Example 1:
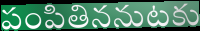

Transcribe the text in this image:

పంపితిననుటకు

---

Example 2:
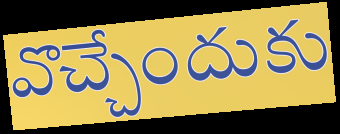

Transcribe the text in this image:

వొచ్చేందుకు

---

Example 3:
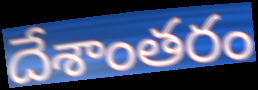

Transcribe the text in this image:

దేశాంతరం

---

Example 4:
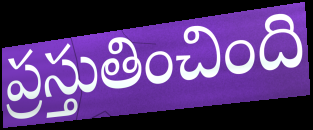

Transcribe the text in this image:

ప్రస్తుతించింది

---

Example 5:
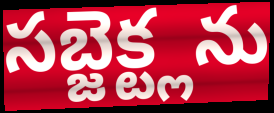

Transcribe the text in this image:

సబ్జెక్ట్లను